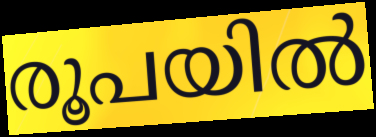
രൂപയിൽ